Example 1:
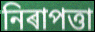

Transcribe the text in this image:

নিৰাপত্তা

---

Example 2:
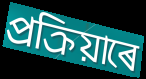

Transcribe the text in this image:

প্ৰক্ৰিয়াৰে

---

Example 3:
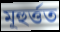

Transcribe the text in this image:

মূহুৰ্ত্তত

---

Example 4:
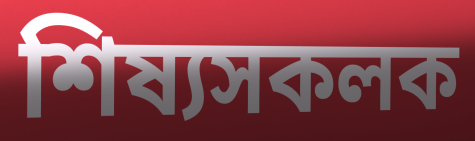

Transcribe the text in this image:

শিষ্যসকলক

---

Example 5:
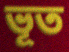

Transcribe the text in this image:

ভূত